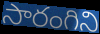
సారంగిని